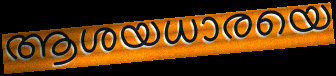
ആശയധാരയെ